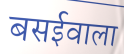
बसईवाला